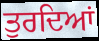
ਤੁਰਦਿਆਂ